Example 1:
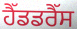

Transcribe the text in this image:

ਹੈੱਡਡਰੈੱਸ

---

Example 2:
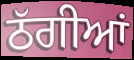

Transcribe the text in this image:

ਠੱਗੀਆਂ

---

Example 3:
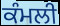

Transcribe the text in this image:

ਕੰਮਲੀ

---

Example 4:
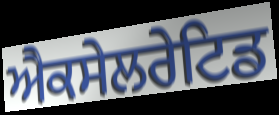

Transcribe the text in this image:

ਐਕਸੇਲਰੇਟਿਡ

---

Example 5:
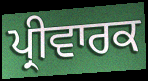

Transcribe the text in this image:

ਪ੍ਰੀਵਾਰਕ